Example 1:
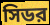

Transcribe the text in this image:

সিডর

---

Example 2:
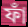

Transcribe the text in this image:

ফাঁ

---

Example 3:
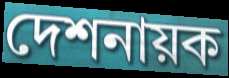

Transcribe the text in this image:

দেশনায়ক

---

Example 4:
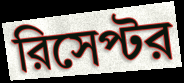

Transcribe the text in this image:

রিসেপ্টর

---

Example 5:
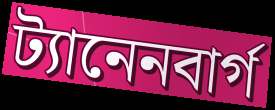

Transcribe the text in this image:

ট্যানেনবার্গ